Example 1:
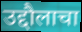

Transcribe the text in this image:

उद्दौलाचा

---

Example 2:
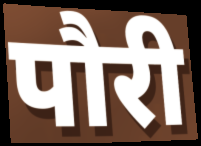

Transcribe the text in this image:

पौरी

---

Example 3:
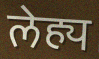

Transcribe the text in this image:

लेह्य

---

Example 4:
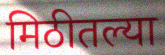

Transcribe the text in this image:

मिठीतल्या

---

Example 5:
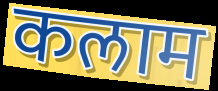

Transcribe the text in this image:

कलाम